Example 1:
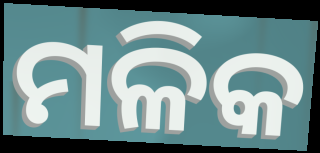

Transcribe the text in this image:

ମଳିକ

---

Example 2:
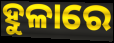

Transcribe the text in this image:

ହୁଳାରେ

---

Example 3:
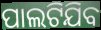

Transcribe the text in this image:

ପାଲଟିଯିବ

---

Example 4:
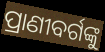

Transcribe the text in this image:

ପ୍ରାଣୀବର୍ଗଙ୍କୁ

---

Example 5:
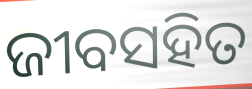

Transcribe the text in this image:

ଜୀବସହିତ